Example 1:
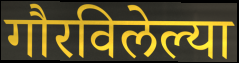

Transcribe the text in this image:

गौरविलेल्या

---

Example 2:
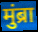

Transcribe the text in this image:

मुंब्रा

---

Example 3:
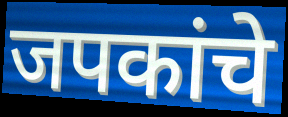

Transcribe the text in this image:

जपकांचे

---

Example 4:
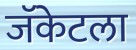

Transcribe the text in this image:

जॅकेटला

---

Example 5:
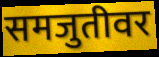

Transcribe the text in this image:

समजुतीवर